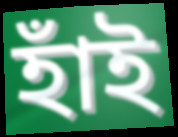
হাঁই